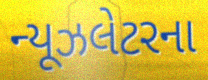
ન્યૂઝલેટરના